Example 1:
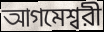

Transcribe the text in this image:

আগমেশ্বরী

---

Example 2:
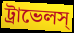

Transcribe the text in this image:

ট্রাভেলস্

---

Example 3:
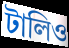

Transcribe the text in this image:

টালিও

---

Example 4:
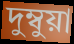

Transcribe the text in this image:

দুম্বুয়া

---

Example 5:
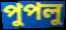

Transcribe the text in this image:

পুপলু